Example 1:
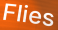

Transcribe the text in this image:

Flies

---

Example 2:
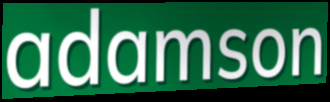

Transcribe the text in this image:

adamson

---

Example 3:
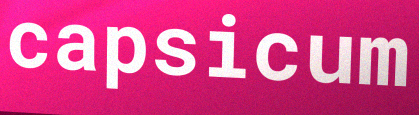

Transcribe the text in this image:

capsicum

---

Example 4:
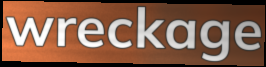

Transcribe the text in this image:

wreckage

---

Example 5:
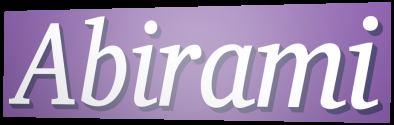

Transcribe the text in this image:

Abirami